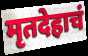
मृतदेहाचं